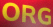
ORG